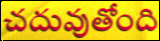
చదువుతోంది